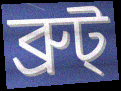
ব্রুট্